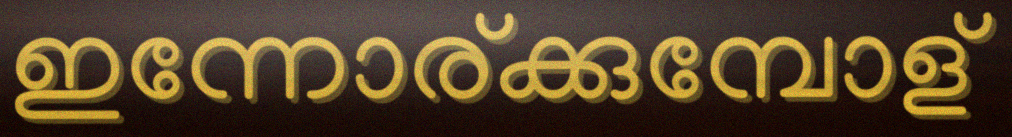
ഇന്നോര്ക്കുമ്പോള്